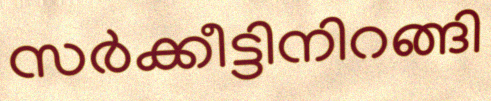
സർക്കീട്ടിനിറങ്ങി